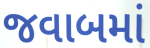
જવાબમાં